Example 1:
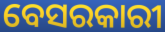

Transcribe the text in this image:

ବେସରକାରୀ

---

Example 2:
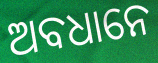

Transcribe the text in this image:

ଅବଧାନେ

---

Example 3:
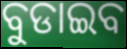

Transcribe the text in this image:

ବୁଡାଇବ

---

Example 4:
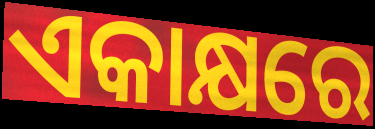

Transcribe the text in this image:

ଏକାକ୍ଷରେ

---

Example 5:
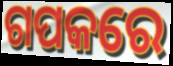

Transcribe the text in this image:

ଗପକରେ